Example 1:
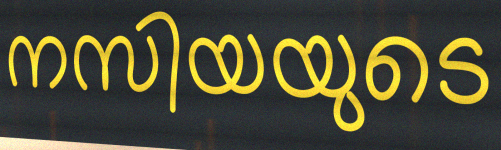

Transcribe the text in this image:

നസിയയുടെ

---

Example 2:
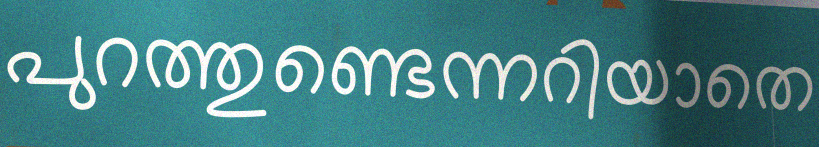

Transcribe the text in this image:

പുറത്തുണ്ടെന്നറിയാതെ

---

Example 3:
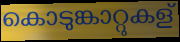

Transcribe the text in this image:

കൊടുങ്കാറ്റുകള്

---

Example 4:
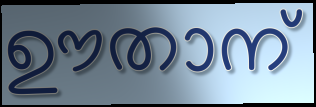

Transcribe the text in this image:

ഊതാന്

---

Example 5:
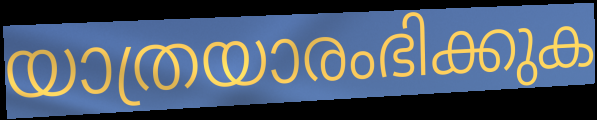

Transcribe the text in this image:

യാത്രയാരംഭിക്കുക